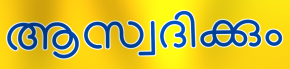
ആസ്വദിക്കും